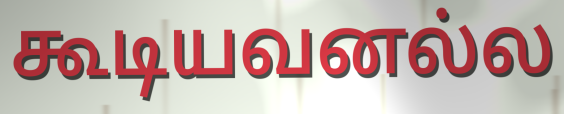
கூடியவனல்ல